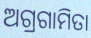
ଅଗ୍ରଗାମିତା